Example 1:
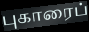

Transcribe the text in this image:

புகாரைப்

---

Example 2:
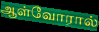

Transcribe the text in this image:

ஆள்வோரால்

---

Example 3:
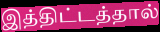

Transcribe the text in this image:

இத்திட்டத்தால்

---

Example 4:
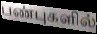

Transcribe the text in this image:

பண்புகளில்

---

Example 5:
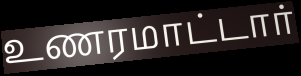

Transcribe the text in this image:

உணரமாட்டார்